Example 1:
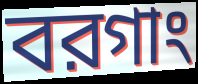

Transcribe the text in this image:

বরগাং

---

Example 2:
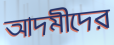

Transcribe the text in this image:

আদমীদের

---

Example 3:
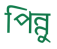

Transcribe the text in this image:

পিন্নু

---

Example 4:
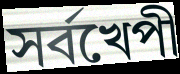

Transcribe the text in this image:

সর্বখেপী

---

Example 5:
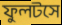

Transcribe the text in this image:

ফুলটসে